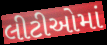
લીટીઓમાં